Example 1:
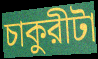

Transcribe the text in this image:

চাকুরীটা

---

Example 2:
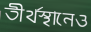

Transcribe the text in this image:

তীর্থস্থানেও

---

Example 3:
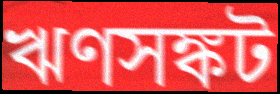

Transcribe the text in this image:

ঋণসঙ্কট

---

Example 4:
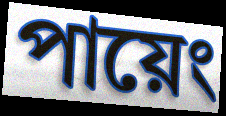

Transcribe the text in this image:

পায়েং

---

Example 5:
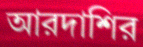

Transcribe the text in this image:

আরদাশির